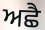
ਅਛੈ